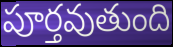
పూర్తవుతుంది